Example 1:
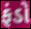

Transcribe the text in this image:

ફંડો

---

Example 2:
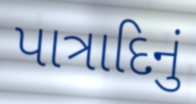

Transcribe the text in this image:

પાત્રાદિનું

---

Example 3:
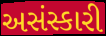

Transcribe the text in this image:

અસંસ્કારી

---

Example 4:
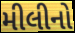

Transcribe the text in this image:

મીલીનો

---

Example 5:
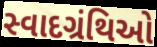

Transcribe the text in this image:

સ્વાદગ્રંથિઓ